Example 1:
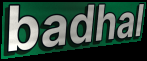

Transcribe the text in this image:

badhal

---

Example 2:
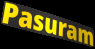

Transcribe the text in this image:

Pasuram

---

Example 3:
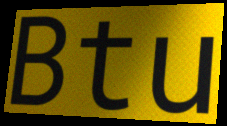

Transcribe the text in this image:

Btu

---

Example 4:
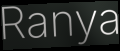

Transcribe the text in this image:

Ranya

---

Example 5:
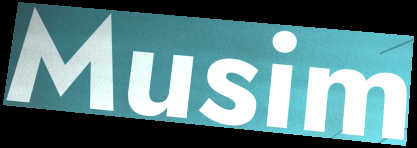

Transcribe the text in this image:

Musim